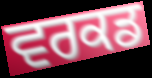
ਵਰਕਡ